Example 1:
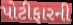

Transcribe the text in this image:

પોટીફારની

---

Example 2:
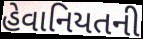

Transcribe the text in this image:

હેવાનિયતની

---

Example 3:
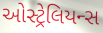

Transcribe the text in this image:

ઓસ્ટ્રેલિયન્સ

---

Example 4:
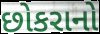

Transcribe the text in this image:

છોકરાનો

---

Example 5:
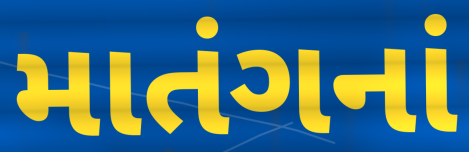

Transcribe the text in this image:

માતંગનાં